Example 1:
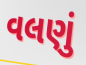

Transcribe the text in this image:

વલણું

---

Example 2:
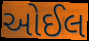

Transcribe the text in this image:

ઓઈલ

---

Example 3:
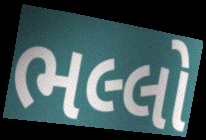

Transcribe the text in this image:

ભલ્લો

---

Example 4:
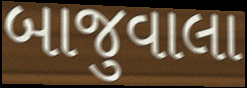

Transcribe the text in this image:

બાજુવાલા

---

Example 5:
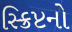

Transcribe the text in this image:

સ્ક્રિપ્ટનો